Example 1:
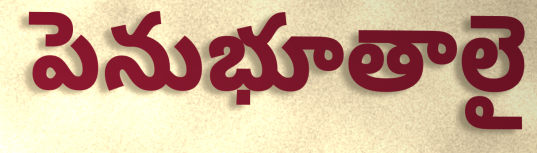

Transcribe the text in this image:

పెనుభూతాలై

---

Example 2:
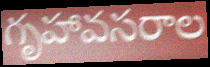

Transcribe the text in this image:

గృహావసరాల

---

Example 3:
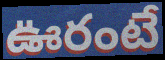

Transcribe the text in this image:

ఊరంటే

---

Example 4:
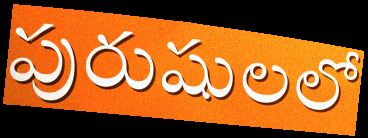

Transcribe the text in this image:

పురుషులలో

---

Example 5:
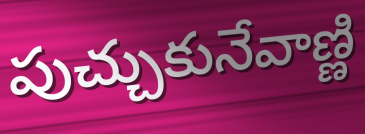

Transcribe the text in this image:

పుచ్చుకునేవాణ్ణి